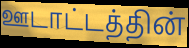
ஊடாட்டத்தின்